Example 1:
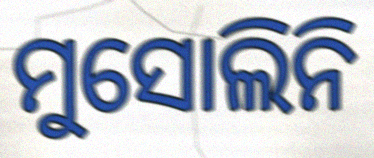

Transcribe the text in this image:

ମୁସୋଲିନି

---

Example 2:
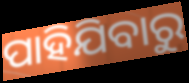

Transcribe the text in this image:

ପାହିଯିବାରୁ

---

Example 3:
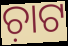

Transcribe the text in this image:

ଚ଼ାଟ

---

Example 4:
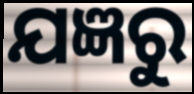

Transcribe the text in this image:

ଯଜ୍ଞରୁ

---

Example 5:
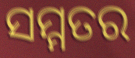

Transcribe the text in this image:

ସମ୍ମତର